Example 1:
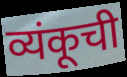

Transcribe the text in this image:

व्यंकूची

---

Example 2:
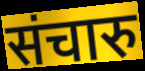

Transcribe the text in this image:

संचारु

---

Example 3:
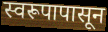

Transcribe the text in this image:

स्वरूपापासून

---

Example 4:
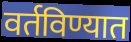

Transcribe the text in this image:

वर्तविण्यात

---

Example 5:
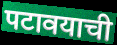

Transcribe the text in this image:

पटावयाची